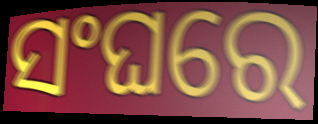
ସଂଘରେ